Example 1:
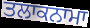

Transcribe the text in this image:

ਤਲਾਕਨਾਮਾ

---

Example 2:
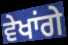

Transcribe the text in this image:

ਵੇਖਾਂਗੇ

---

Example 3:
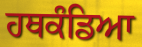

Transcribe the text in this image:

ਹਥਕੰਡਿਆ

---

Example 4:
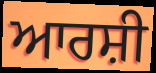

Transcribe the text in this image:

ਆਰਸ਼ੀ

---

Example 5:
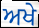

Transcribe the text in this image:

ਅਖੇ